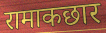
रामाकछार